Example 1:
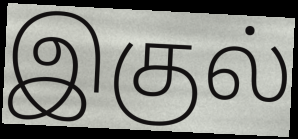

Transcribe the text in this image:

இகுல்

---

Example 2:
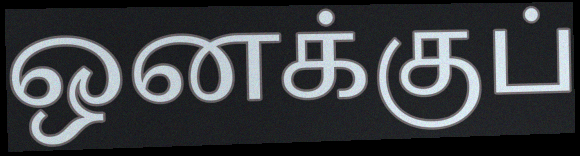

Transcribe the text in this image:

ஒனக்குப்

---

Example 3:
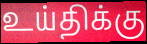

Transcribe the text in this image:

உய்திக்கு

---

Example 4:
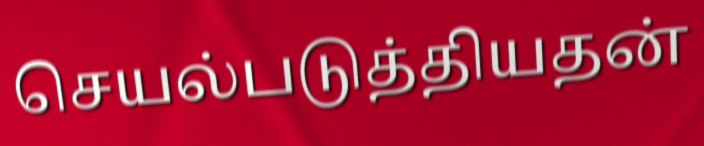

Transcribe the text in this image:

செயல்படுத்தியதன்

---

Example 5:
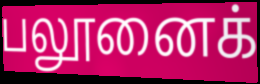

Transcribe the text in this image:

பலூனைக்